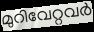
മുറിവേറ്റവർ